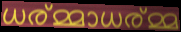
ധര്മ്മാധര്മ്മ